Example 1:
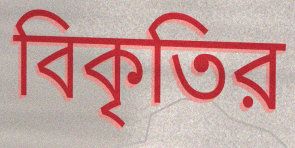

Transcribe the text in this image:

বিকৃতির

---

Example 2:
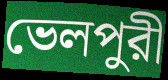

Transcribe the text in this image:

ভেলপুরী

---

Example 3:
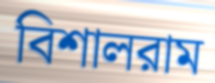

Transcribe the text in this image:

বিশালরাম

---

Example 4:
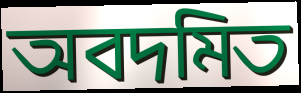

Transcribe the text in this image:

অবদমিত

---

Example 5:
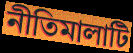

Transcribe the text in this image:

নীতিমালাটি